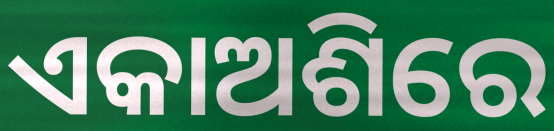
ଏକାଅଶିରେ